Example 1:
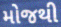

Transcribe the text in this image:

મોજથી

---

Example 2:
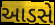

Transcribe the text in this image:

આડસે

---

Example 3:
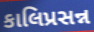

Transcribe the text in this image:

કાલિપ્રસન્ન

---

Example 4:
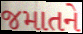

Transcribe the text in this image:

જમાતને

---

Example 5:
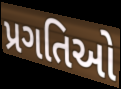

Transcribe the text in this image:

પ્રગતિઓ